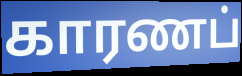
காரணப்